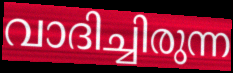
വാദിച്ചിരുന്ന